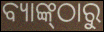
ବ୍ୟାଙ୍କ୍‌ଠାରୁ